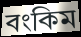
বংকিম